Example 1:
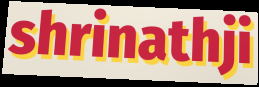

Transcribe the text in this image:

shrinathji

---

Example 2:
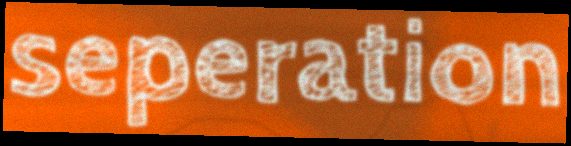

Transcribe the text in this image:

seperation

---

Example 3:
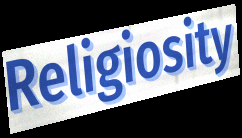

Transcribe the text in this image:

Religiosity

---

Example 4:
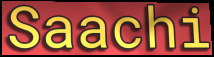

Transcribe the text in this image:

Saachi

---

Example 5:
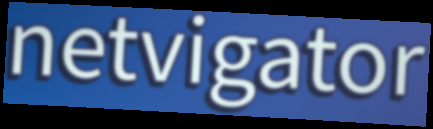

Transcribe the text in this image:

netvigator